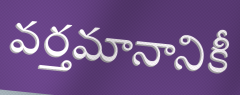
వర్తమానానికీ